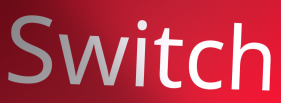
Switch